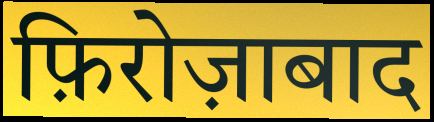
फ़िरोज़ाबाद